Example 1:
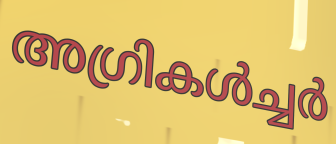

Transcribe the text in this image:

അഗ്രികൾച്ചർ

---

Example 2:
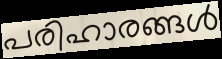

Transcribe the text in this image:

പരിഹാരങ്ങൾ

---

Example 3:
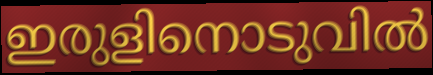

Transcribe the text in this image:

ഇരുളിനൊടുവിൽ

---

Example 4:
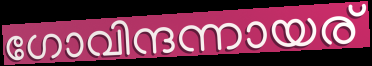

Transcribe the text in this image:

ഗോവിന്ദന്നായര്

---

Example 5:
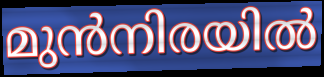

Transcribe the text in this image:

മുൻനിരയിൽ